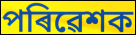
পৰিৱেশক